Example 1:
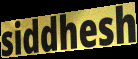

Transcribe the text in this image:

siddhesh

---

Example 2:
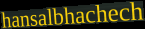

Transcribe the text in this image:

hansalbhachech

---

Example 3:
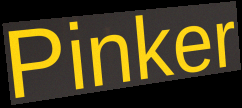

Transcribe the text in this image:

Pinker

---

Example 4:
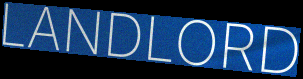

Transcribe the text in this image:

LANDLORD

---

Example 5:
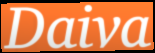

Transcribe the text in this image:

Daiva